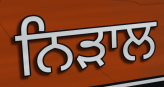
ਨਿੜਾਲ